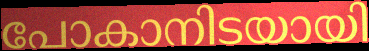
പോകാനിടയായി